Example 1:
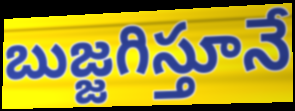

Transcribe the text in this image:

బుజ్జగిస్తూనే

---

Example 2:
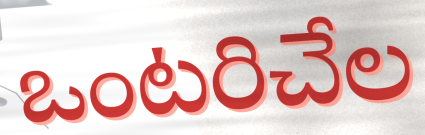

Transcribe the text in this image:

ఒంటరిచేల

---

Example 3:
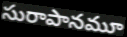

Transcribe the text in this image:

సురాపానమూ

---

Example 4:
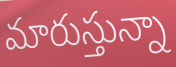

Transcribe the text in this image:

మారుస్తున్నా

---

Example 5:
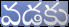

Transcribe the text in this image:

వడకు